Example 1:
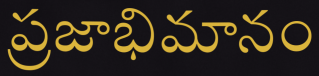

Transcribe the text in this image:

ప్రజాభిమానం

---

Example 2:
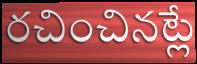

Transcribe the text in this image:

రచించినట్లే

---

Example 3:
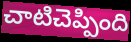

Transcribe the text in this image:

చాటిచెప్పింది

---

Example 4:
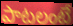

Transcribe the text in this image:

పాటలంటే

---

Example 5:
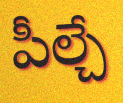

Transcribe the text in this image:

పీల్చే